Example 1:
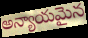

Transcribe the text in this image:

అన్యాయమైన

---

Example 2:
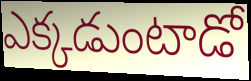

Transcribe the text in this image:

ఎక్కడుంటాడో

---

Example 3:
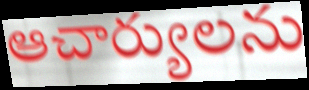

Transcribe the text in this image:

ఆచార్యులను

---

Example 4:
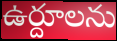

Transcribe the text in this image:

ఉర్దూలను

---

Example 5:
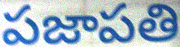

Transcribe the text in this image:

పజాపతి